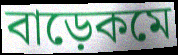
বাড়েকমে